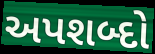
અપશબ્દો